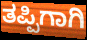
ತಪ್ಪಿಗಾಗಿ